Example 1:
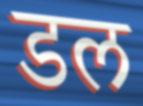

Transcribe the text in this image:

डल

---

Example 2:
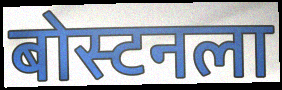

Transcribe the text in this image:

बोस्टनला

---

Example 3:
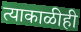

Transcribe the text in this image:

त्याकाळीही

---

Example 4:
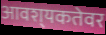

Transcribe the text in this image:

आवश्यकतेवर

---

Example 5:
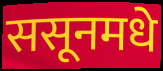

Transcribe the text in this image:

ससूनमधे